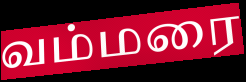
வம்மரை